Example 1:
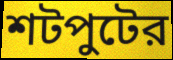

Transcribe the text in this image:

শটপুটের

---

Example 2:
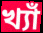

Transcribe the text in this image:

খ্যাঁ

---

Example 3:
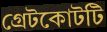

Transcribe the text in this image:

গ্রেটকোটটি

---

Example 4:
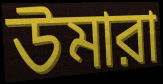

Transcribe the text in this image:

উমারা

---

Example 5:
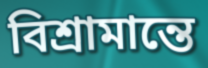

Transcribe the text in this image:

বিশ্রামান্তে